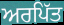
ਅਰਪਿੱਤ